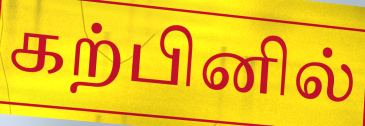
கற்பினில்